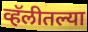
व्हॅलीतल्या